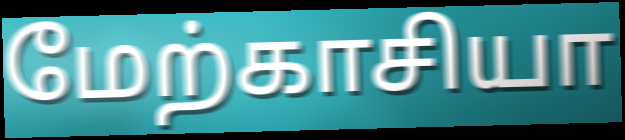
மேற்காசியா